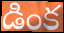
డింక